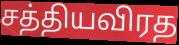
சத்தியவிரத